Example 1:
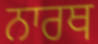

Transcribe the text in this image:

ਨਾਰਥ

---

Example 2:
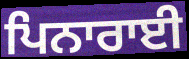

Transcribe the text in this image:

ਪਿਨਾਰਾਈ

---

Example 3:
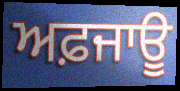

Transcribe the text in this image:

ਅਫ਼ਜਾਊ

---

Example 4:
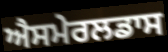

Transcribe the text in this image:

ਐਸਮੇਰਲਡਾਸ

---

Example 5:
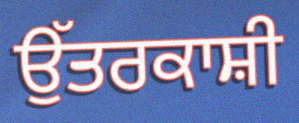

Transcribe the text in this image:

ਉੱਤਰਕਾਸ਼ੀ